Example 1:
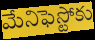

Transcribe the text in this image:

మేనిఫెస్టోకు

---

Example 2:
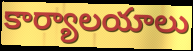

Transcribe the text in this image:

కార్యాలయాలు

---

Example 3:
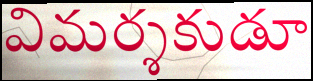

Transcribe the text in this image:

విమర్శకుడూ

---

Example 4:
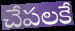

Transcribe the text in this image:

చేపలకే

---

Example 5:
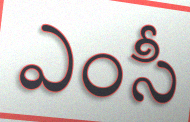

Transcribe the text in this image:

ఎంసీ